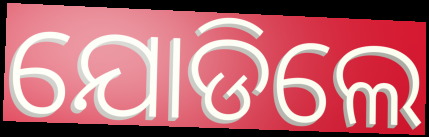
ଯୋଡିଲେ